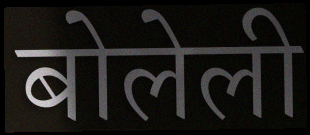
बोलेली